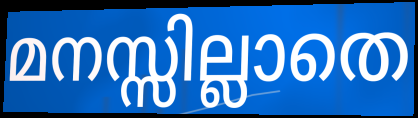
മനസ്സില്ലാതെ